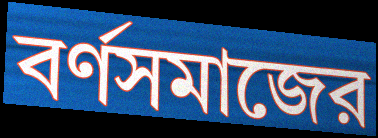
বর্ণসমাজের